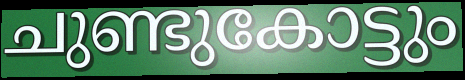
ചുണ്ടുകോട്ടും